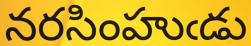
నరసింహుఁడు